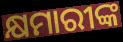
କ୍ଷମାରୀଙ୍କ